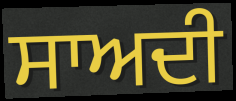
ਸਾਅਦੀ